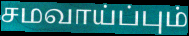
சமவாய்ப்பும்